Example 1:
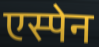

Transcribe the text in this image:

एस्पेन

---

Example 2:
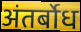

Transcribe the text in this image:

अंतर्बोध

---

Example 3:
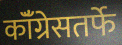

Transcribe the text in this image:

कॉँग्रेसतर्फे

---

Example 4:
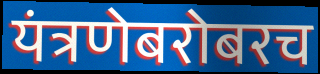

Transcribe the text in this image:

यंत्रणेबरोबरच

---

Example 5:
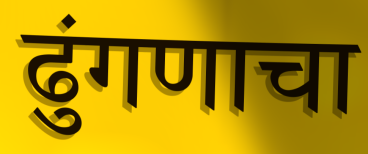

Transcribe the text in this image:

ढुंगणाचा